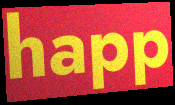
happ